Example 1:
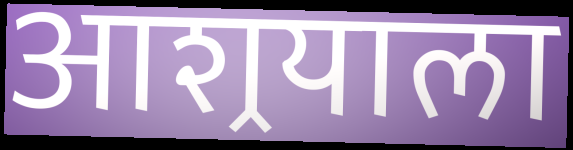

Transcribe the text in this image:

आश्रयाला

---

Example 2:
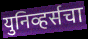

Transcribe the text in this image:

युनिव्हर्सचा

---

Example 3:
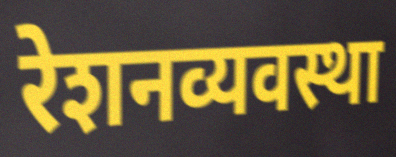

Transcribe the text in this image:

रेशनव्यवस्था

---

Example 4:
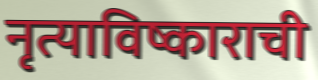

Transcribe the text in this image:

नृत्याविष्काराची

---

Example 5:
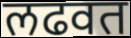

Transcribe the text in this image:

लढवत